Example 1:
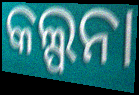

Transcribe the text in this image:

କଲ୍ପନା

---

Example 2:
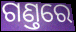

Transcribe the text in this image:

ଗଣ୍ତରେ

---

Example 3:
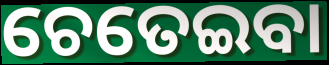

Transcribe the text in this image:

ଚେତେଇବା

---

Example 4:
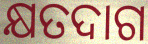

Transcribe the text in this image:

କ୍ଷତଦାଗ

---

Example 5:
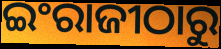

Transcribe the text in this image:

ଇଂରାଜୀଠାରୁ